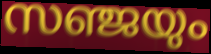
സഞ്ജയും